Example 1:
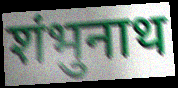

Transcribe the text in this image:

शंभुनाथ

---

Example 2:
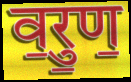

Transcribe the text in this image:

व॒रु॒ण॒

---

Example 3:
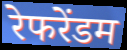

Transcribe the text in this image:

रेफरेंडम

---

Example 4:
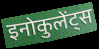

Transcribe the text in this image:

इनोकुलेंट्स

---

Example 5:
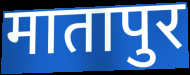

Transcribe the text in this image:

मातापुर